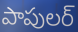
పాపులర్